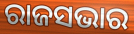
ରାଜସଭାର